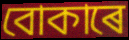
বোকাৰে